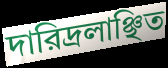
দারিদ্রলাঞ্ছিত